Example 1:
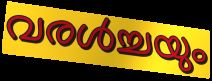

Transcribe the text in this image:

വരൾച്ചയും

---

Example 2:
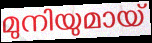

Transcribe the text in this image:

മുനിയുമായ്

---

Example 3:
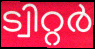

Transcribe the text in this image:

ട്വിറ്റർ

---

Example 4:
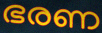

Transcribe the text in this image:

ഭരണ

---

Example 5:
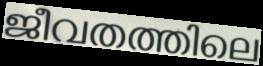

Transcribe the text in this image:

ജീവതത്തിലെ